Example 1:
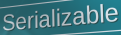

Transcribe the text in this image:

Serializable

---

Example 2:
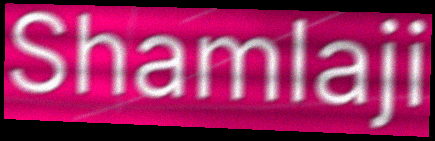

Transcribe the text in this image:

Shamlaji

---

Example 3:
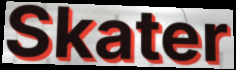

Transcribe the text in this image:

Skater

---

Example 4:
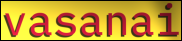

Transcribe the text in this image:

vasanai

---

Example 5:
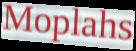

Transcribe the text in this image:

Moplahs